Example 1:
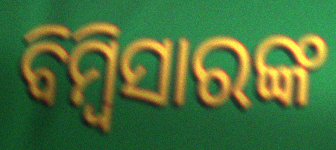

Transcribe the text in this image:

ବିମ୍ବିସାରଙ୍କ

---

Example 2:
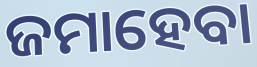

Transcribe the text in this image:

ଜମାହେବା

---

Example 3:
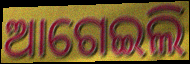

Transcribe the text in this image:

ଆଗେଇଲି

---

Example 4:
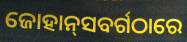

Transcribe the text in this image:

ଜୋହାନ୍‌ସବର୍ଗଠାରେ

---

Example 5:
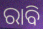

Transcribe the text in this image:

ରାବି